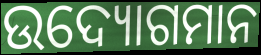
ଉଦ୍ୟୋଗମାନ